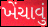
ખેંચાવું